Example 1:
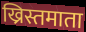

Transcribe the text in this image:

ख्रिस्तमाता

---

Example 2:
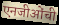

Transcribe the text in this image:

एनजीओंची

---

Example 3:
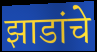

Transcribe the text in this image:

झाडांचे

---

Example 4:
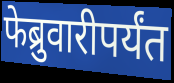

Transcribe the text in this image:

फेब्रुवारीपर्यंत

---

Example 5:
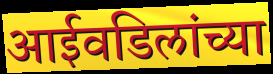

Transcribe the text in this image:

आईवडिलांच्या